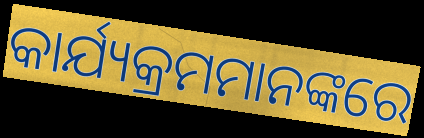
କାର୍ଯ୍ୟକ୍ରମମାନଙ୍କରେ